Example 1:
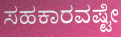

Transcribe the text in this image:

ಸಹಕಾರವಷ್ಟೇ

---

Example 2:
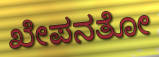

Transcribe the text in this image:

ಖೇಪನತೋ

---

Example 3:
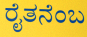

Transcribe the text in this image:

ರೈತನೆಂಬ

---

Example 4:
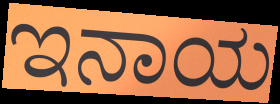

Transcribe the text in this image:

ಇನಾಯ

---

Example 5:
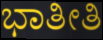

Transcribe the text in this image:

ಭಾತೀತಿ